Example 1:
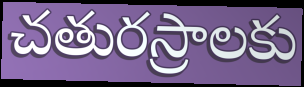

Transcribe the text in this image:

చతురస్రాలకు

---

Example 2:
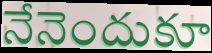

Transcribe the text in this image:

నేనెందుకూ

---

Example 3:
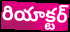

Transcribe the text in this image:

రియాక్టర్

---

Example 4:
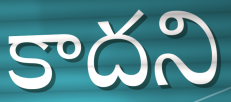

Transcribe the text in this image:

కాదని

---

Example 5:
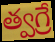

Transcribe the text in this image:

త్వగ్రే